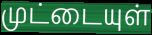
முட்டையுள்